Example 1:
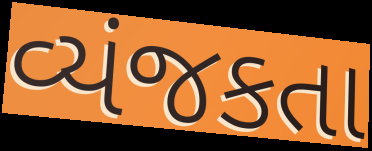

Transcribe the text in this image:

વ્યંજકતા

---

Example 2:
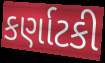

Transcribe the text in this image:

કર્ણાટકી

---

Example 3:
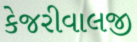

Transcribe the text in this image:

કેજરીવાલજી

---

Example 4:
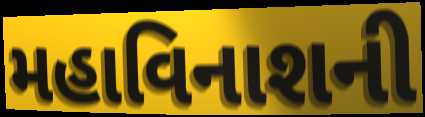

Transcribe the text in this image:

મહાવિનાશની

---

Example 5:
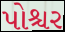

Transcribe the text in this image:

પોશ્ચર